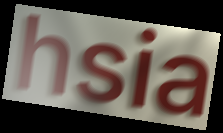
hsia